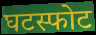
घटस्फोट